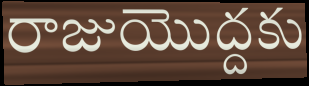
రాజుయొద్దకు